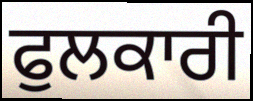
ਫੁਲਕਾਰੀ